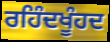
ਰਹਿੰਦਖੂੰਹਦ